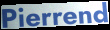
Pierrend